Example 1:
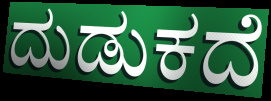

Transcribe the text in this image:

ದುಡುಕದೆ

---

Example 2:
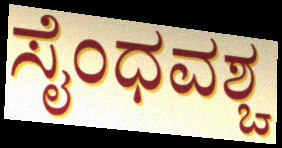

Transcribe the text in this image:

ಸೈಂಧವಶ್ಚ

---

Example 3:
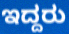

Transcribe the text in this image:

ಇದ್ದರು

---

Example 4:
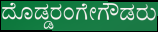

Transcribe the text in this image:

ದೊಡ್ಡರಂಗೇಗೌಡರು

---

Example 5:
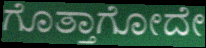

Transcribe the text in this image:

ಗೊತ್ತಾಗೋದೇ